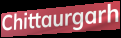
Chittaurgarh